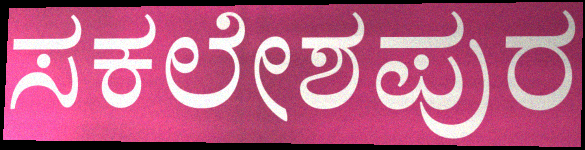
ಸಕಲೇಶಪುರ